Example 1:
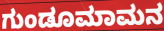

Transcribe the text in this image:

ಗುಂಡೂಮಾಮನ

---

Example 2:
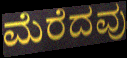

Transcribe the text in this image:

ಮೆರೆದವು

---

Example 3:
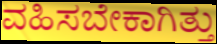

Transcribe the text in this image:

ವಹಿಸಬೇಕಾಗಿತ್ತು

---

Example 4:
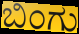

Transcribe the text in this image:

ಬಿಂಗು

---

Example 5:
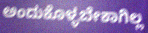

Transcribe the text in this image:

ಅಂದುಕೊಳ್ಳಬೇಕಾಗಿಲ್ಲ